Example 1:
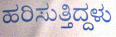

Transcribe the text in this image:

ಹರಿಸುತ್ತಿದ್ದಳು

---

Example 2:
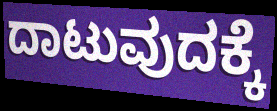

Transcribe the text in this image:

ದಾಟುವುದಕ್ಕೆ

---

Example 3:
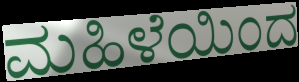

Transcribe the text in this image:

ಮಹಿಳೆಯಿಂದ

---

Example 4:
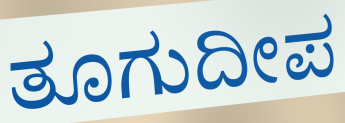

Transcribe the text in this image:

ತೂಗುದೀಪ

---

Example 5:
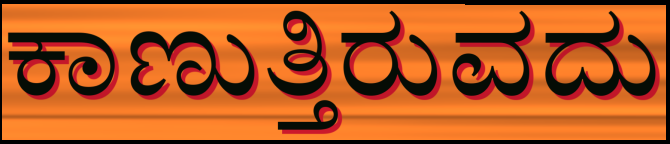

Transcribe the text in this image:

ಕಾಣುತ್ತಿರುವದು